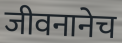
जीवनानेच